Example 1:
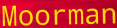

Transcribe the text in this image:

Moorman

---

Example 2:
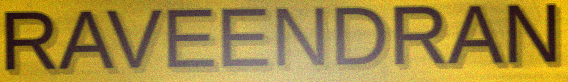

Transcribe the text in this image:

RAVEENDRAN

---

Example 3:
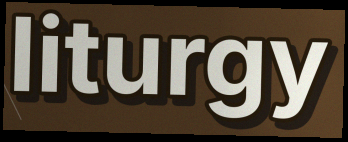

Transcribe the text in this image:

liturgy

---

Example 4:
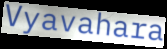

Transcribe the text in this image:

Vyavahara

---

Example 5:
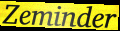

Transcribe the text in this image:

Zeminder